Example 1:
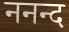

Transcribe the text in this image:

ननन्द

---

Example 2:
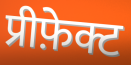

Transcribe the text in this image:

प्रीफ़ेक्ट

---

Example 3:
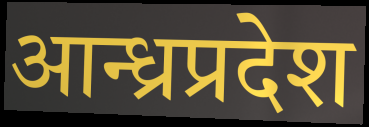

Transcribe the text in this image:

आन्ध्रप्रदेश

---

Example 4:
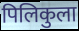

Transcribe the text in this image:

पिलिकुला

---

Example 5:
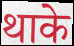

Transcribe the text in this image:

थाके